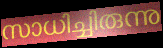
സാധിച്ചിരുന്നു